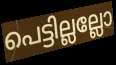
പെട്ടില്ലല്ലോ